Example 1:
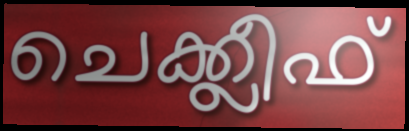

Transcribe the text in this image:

ചെക്ക്ലീഫ്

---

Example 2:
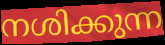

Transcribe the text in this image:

നശിക്കുന്ന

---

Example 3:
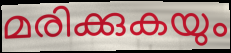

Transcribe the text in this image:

മരിക്കുകയും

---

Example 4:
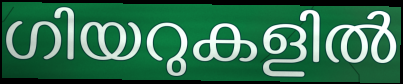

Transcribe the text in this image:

ഗിയറുകളിൽ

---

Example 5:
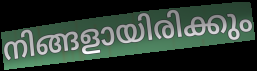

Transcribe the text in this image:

നിങ്ങളായിരിക്കും